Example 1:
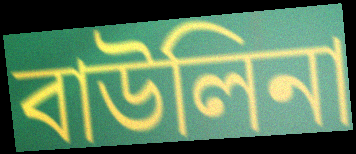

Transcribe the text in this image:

বাউলিনা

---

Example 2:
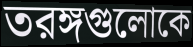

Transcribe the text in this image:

তরঙ্গগুলোকে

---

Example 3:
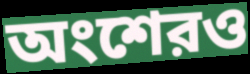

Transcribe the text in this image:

অংশেরও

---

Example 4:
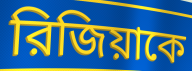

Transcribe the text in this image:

রিজিয়াকে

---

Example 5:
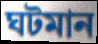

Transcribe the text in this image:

ঘটমান